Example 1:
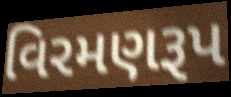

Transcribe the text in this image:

વિરમણરૂપ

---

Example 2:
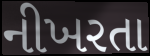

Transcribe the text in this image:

નીખરતા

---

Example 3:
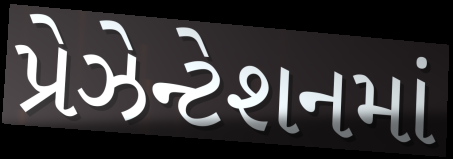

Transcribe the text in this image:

પ્રેઝેન્ટેશનમાં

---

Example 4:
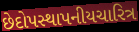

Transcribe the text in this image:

છેદોપસ્થાપનીયચારિત્ર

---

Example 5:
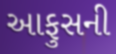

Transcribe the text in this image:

આફુસની